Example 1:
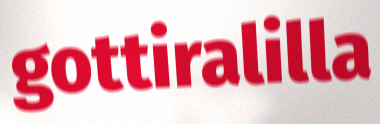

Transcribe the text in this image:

gottiralilla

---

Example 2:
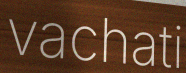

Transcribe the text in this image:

vachati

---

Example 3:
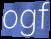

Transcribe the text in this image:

ogf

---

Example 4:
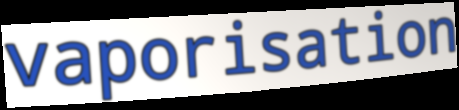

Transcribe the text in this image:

vaporisation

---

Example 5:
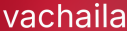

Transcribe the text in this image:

vachaila